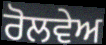
ਰੋਲਵੇਅ